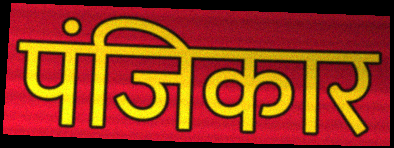
पंजिकार